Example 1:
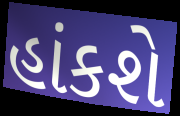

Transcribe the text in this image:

હાંકશે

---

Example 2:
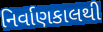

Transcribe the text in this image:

નિર્વાણકાલથી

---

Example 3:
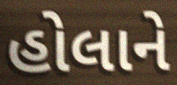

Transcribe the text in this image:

હોલાને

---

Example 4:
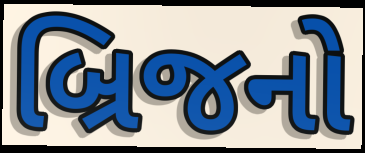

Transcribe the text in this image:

બ્રિજનો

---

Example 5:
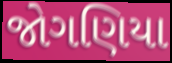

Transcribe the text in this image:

જોગણિયા